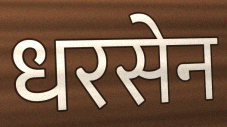
धरसेन